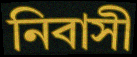
নিবাসী